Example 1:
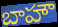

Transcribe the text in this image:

బాహౌ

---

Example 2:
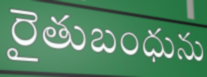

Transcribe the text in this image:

రైతుబంధును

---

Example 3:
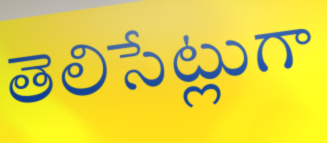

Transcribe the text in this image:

తెలిసేట్లుగా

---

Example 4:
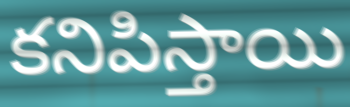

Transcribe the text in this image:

కనిపిస్తాయి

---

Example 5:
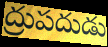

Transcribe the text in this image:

ద్రుపదుడు